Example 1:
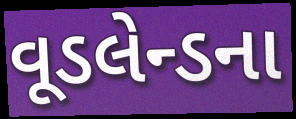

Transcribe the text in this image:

વૂડલેન્ડના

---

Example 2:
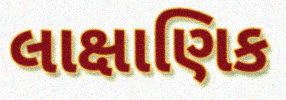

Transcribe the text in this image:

લાક્ષાણિક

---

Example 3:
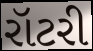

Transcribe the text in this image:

રૉટરી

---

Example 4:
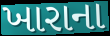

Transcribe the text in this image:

ખારાના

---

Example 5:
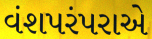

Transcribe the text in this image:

વંશપરંપરાએ